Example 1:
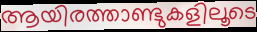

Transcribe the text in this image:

ആയിരത്താണ്ടുകളിലൂടെ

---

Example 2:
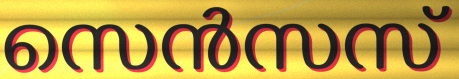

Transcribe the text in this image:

സെൻസസ്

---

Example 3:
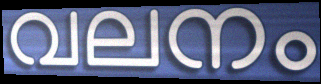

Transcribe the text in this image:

വലനം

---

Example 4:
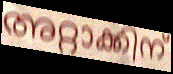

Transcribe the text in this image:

അറ്റാക്കിന്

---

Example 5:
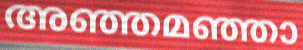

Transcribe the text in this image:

അഞ്ഞമഞ്ഞാ